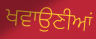
ਖਵਾਉਣੀਆਂ